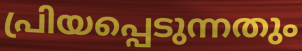
പ്രിയപ്പെടുന്നതും